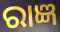
ରାଜ୍ଞ